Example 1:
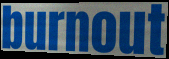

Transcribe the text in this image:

burnout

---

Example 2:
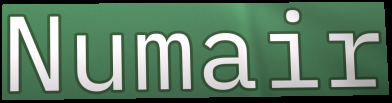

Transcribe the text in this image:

Numair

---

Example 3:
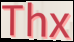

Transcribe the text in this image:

Thx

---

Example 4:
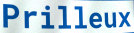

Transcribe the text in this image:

Prilleux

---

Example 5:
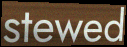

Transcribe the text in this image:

stewed